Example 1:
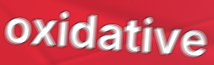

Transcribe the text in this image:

oxidative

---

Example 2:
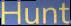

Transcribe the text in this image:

Hunt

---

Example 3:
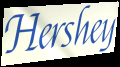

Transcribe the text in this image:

Hershey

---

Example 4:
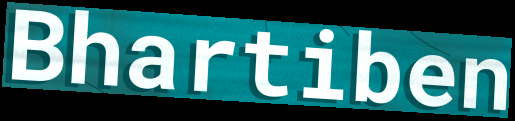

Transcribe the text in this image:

Bhartiben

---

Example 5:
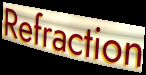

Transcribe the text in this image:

Refraction